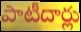
పాటీదార్లు